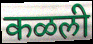
कळली